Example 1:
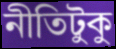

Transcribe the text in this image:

নীতিটুকু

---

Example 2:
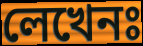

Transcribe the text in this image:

লেখেনঃ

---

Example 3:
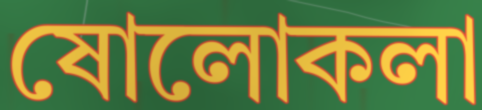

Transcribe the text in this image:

ষোলোকলা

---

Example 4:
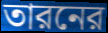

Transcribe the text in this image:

তারনের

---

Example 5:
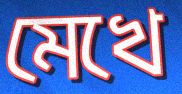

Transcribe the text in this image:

মেখে